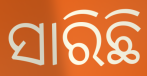
ସାରିଛି